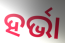
ହର୍ଭା